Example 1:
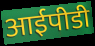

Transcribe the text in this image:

आईपीडी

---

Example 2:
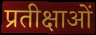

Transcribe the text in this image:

प्रतीक्षाओं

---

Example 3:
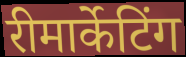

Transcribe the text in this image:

रीमार्केटिंग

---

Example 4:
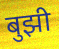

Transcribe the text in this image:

बुझी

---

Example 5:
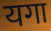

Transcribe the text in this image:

यगा